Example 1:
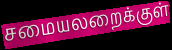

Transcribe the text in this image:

சமையலறைக்குள்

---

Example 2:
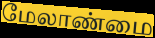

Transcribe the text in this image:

மேலாண்மை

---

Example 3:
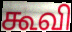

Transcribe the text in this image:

கூவி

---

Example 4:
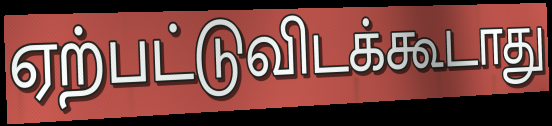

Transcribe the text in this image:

ஏற்பட்டுவிடக்கூடாது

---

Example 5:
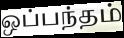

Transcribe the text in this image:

ஒப்பந்தம்